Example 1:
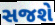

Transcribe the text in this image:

સજશે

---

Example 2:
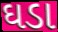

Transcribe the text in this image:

ઘડા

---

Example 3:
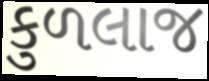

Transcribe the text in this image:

કુળલાજ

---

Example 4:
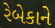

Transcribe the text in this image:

રેબેકાને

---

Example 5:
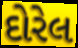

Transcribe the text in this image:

દોરેલ